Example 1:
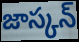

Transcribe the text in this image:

జాస్కన్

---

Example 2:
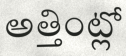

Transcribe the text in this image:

అత్తింట్లో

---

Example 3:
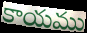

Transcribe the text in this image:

కాయము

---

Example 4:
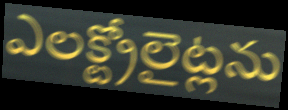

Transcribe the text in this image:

ఎలక్ట్రోలైట్లను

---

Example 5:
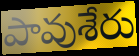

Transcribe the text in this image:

పావుశేరు